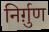
निर्ग़ुण